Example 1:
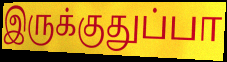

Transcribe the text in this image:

இருக்குதுப்பா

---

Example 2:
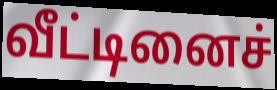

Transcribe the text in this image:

வீட்டினைச்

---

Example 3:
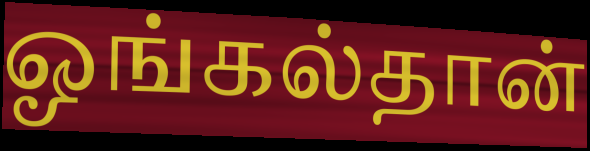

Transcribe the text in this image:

ஓங்கல்தான்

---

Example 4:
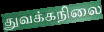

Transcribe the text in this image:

துவக்கநிலை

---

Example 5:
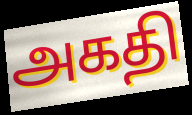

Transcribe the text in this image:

அகதி